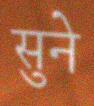
सुने